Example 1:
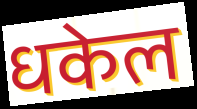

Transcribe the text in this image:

धकेल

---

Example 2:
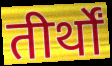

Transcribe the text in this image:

तीर्थों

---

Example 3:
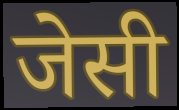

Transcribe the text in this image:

जेसी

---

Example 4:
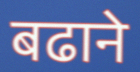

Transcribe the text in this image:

बढाने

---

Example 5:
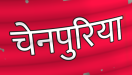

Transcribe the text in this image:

चेनपुरिया